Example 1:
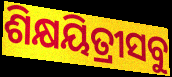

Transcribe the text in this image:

ଶିକ୍ଷୟିତ୍ରୀସବୁ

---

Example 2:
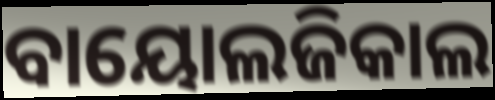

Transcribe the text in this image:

ବାୟୋଲଜିକାଲ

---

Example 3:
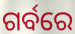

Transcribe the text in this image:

ଗର୍ବରେ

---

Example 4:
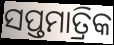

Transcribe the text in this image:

ସପ୍ତମାତ୍ରିକ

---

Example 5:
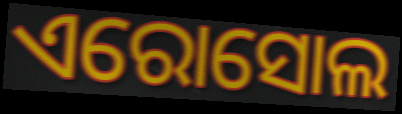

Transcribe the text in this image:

ଏରୋସୋଲ